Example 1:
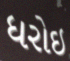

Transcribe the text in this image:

ધરોઇ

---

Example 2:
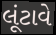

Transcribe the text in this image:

લૂંટાવે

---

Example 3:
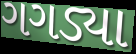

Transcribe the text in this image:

ગગડ્યા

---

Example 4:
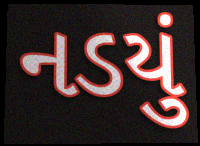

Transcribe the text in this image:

નડયું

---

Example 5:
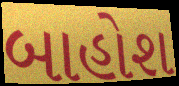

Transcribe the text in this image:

બાહોશ